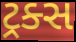
ટ્રક્સ